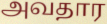
அவதார